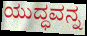
ಯುದ್ಧವನ್ನ